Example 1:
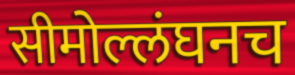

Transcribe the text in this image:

सीमोल्लंघनच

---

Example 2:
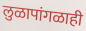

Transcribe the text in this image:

लुळापांगळाही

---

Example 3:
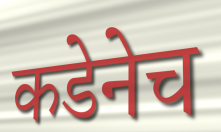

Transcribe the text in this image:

कडेनेच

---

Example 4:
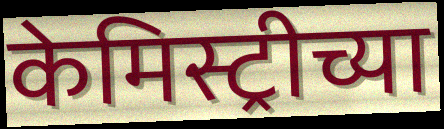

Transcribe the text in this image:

केमिस्ट्रीच्या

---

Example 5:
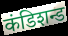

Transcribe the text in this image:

कंडिशन्ड